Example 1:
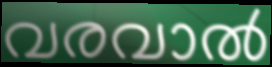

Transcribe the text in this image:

വരവാൽ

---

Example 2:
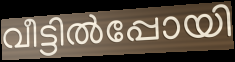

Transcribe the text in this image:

വീട്ടിൽപ്പോയി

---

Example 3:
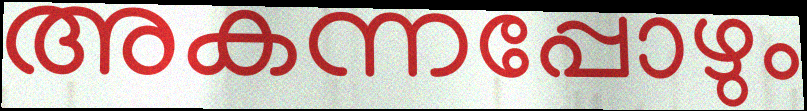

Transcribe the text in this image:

അകന്നപ്പോഴും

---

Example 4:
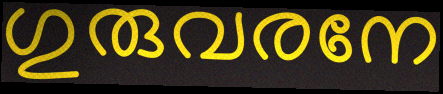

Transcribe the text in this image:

ഗുരുവരനേ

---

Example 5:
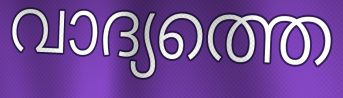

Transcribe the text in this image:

വാദ്യത്തെ